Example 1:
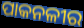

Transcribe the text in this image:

ପାକନଳୀର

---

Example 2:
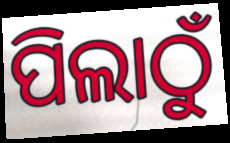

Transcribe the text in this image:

ପିଲାଠୁଁ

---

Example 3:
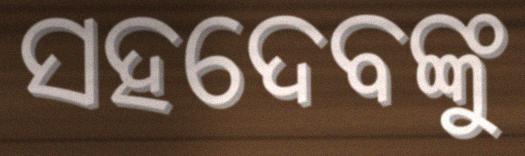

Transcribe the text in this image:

ସହଦେବଙ୍କୁ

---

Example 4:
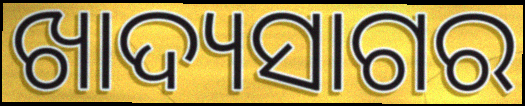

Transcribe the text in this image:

ଖାଦ୍ୟସାଗର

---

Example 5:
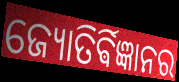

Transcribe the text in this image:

ଜ୍ୟୋତିର୍ଵିଜ୍ଞାନର